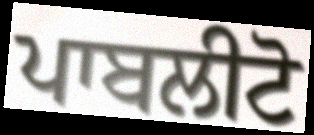
ਪਾਬਲੀਟੋ